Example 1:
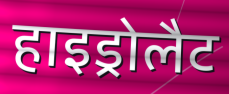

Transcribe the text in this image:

हाइड्रोलैट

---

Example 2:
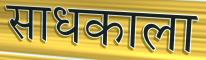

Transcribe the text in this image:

साधकाला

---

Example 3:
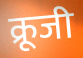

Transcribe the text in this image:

क्रूजी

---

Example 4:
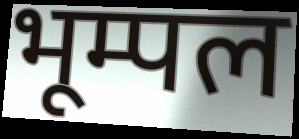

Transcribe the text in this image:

भूम्पल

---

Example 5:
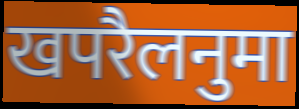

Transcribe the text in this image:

खपरैलनुमा